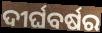
ଦୀର୍ଘବର୍ଷର